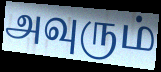
அவுரும்